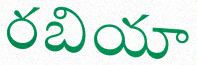
రబియా